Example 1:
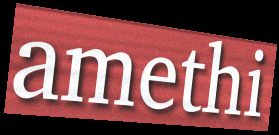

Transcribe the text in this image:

amethi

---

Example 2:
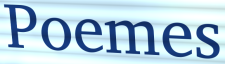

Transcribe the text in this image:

Poemes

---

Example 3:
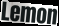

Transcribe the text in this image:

Lemon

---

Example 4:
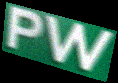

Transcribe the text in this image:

PW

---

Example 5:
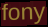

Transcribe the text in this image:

fony